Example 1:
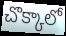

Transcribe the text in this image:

చొక్కాలో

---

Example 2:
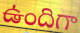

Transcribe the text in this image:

ఉందిగా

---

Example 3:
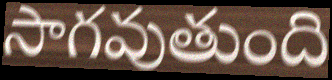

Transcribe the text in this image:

సాగవుతుంది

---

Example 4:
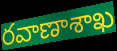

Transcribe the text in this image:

రవాణాశాఖ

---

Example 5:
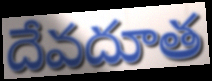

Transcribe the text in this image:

దేవదూత